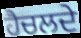
ਹੈਚਲਦੇ